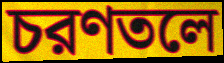
চরণতলে